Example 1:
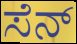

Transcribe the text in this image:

ಸೆನ್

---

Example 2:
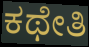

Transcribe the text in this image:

ಕಥೇತಿ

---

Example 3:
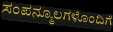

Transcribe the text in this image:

ಸಂಪನ್ಮೂಲಗಳೊಂದಿಗೆ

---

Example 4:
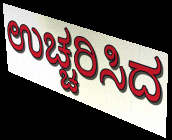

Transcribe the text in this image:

ಉಚ್ಚರಿಸಿದ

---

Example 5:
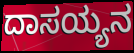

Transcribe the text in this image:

ದಾಸಯ್ಯನ